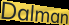
Dalman